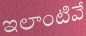
ఇలాంటివే